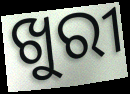
ଖୁରୀ